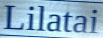
Lilatai